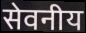
सेवनीय